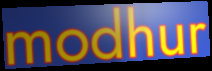
modhur